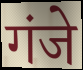
गंजे